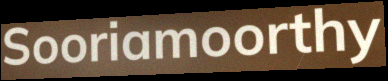
Sooriamoorthy